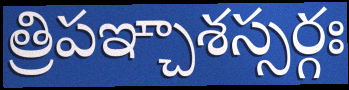
త్రిపఞ్చాశస్సర్గః